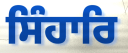
ਸਿੰਹਾਰਿ